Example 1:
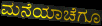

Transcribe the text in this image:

ಮನೆಯಾಚೆಗೂ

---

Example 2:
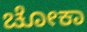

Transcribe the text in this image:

ಚೋಕಾ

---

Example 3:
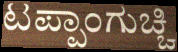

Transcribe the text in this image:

ಟಪ್ಪಾಂಗುಚ್ಚಿ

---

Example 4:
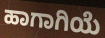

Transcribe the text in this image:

ಹಾಗಾಗಿಯೆ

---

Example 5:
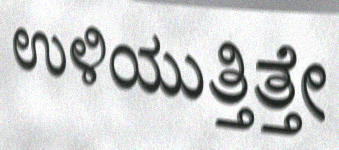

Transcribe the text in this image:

ಉಳಿಯುತ್ತಿತ್ತೇ